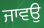
ਜਾਵਉ